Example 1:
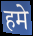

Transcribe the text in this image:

हमे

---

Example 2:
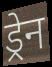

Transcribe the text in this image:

ड्रेन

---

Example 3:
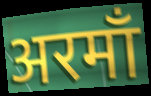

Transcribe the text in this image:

अरमाँ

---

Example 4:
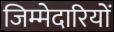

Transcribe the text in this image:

जिम्मेदारियों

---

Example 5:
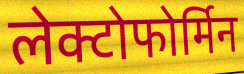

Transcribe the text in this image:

लेक्टोफोर्मिन